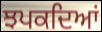
ਝਪਕਦਿਆਂ